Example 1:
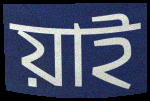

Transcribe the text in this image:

য়াই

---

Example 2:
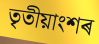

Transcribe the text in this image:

তৃতীয়াংশৰ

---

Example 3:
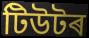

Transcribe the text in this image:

টিউটৰ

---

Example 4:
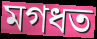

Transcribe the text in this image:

মগধত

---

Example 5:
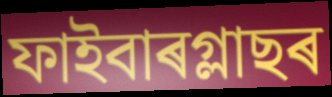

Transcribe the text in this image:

ফাইবাৰগ্লাছৰ